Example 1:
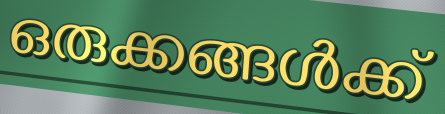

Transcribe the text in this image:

ഒരുക്കങ്ങൾക്ക്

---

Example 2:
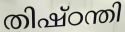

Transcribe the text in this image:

തിഷ്ഠന്തി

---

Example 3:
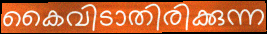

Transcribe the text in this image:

കൈവിടാതിരിക്കുന്ന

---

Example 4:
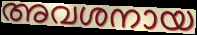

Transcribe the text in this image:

അവശനായ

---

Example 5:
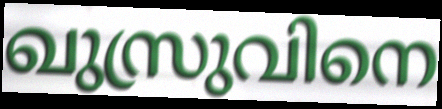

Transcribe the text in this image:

ഖുസ്രുവിനെ